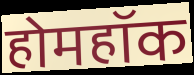
होमहॉक